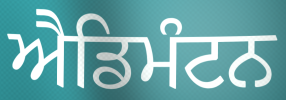
ਐਡਿਮੰਟਨ